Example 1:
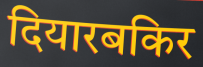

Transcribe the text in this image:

दियारबकिर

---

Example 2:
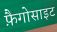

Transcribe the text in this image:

फ़ैगोसाइट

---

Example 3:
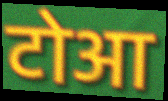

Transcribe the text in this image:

टोआ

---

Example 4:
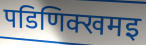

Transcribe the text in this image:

पडिणिक्खमइ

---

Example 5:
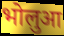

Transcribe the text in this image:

भोलुआ